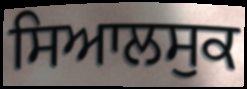
ਸਿਆਲਸੁਕ